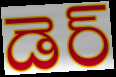
డెర్